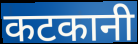
कटकानी